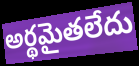
అర్థమైతలేదు